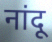
नांदू